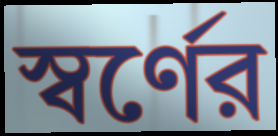
স্বর্ণের